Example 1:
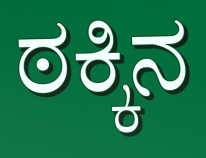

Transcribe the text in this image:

ಠಕ್ಕಿನ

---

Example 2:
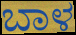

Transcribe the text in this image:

ಬಾಳ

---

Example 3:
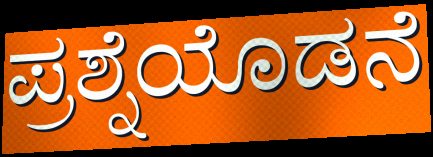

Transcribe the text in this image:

ಪ್ರಶ್ನೆಯೊಡನೆ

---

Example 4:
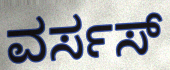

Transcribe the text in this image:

ವರ್ಸಸ್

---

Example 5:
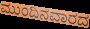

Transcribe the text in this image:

ಮುಂದಿನವಾರದ